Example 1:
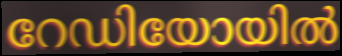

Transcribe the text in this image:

റേഡിയോയിൽ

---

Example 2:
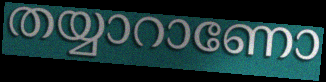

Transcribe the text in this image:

തയ്യാറാണോ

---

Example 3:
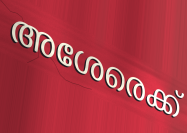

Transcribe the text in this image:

അശേരെക്ക്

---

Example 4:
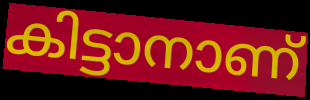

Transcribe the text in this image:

കിട്ടാനാണ്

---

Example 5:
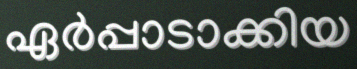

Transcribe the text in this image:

ഏർപ്പാടാക്കിയ